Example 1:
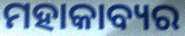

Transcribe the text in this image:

ମହାକାବ୍ୟର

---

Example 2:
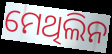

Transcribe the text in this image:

ମେଥିଲିନ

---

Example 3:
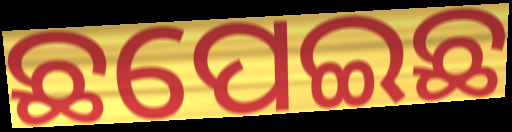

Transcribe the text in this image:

ଛପେଇଛ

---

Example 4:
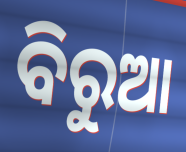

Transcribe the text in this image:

ବିରୁଆ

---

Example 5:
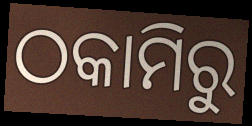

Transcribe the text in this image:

ଠକାମିରୁ